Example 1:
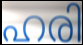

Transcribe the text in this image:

ഹരി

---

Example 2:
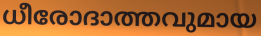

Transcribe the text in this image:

ധീരോദാത്തവുമായ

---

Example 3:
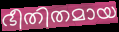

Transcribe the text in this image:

ഭീതിതമായ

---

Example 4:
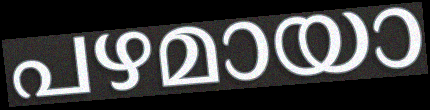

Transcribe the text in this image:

പഴമായാ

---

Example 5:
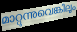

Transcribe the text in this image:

മാറ്റുന്നുവെങ്കിലും